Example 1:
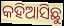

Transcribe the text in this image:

କହିଆସିଛୁ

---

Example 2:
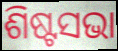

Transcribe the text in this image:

ଶିଷ୍ଟସଭା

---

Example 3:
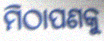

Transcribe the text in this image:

ମିଠାପଣକୁ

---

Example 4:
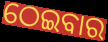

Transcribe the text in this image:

ଠେଇବାର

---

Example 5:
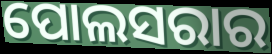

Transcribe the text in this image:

ପୋଲସରାର